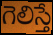
గెలిస్తే